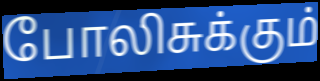
போலிசுக்கும்